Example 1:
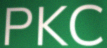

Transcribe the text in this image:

PKC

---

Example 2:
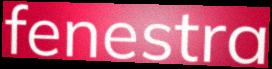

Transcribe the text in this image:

fenestra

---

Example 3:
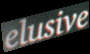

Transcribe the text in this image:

elusive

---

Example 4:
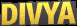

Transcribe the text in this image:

DIVYA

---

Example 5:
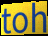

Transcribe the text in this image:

toh